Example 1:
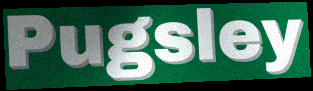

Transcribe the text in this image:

Pugsley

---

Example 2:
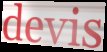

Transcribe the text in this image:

devis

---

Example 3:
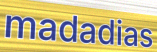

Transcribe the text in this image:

madadias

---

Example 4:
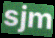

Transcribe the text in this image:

sjm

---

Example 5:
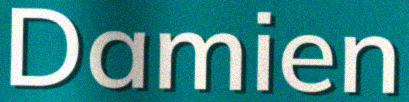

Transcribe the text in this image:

Damien